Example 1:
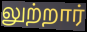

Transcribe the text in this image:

லுற்றார்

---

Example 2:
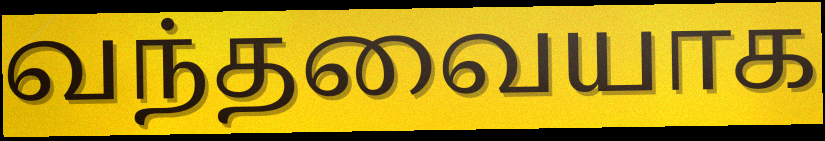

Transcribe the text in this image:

வந்தவையாக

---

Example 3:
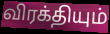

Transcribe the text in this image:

விரக்தியும்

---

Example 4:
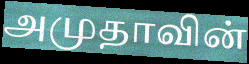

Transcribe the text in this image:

அமுதாவின்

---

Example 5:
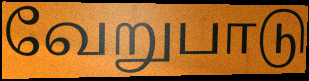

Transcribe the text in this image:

வேறுபாடு